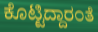
ಕೊಟ್ಟಿದ್ದಾರಂತೆ